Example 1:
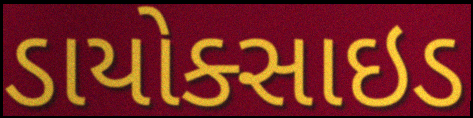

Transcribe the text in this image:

ડાયોક્સાઇડ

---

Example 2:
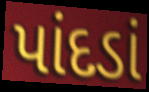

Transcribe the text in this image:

પાંદડાં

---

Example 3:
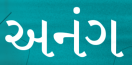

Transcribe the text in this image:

અનંગ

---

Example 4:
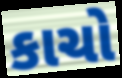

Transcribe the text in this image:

કાચો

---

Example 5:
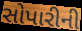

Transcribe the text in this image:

સોપારીની